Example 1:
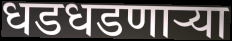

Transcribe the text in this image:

धडधडणाऱ्या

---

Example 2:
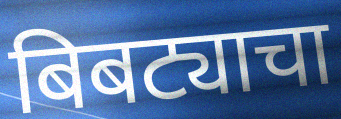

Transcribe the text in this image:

बिबट्याचा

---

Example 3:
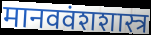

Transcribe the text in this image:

मानववंशशास्त्र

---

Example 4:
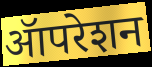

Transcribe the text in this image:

ॲापरेशन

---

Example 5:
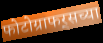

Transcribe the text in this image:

फोटोग्राफर्सच्या